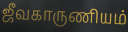
ஜீவகாருணியம்